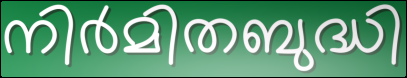
നിർമിതബുദ്ധി